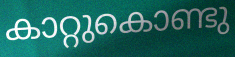
കാറ്റുകൊണ്ടു